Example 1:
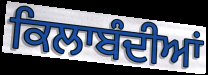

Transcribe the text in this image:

ਕਿਲਾਬੰਦੀਆਂ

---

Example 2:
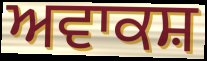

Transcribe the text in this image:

ਅਵਾਕਸ਼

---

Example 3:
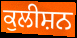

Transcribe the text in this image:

ਕੁਲੀਸ਼ਨ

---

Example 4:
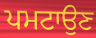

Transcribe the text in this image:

ਪਮਟਾਉਣ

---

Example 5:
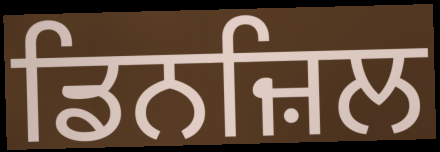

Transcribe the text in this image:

ਡਿਨਜ਼ਿਲ